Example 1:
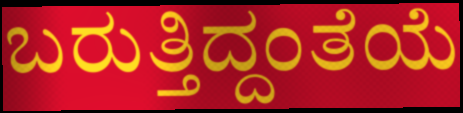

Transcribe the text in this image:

ಬರುತ್ತಿದ್ದಂತೆಯೆ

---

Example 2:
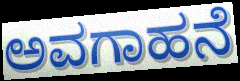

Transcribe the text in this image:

ಅವಗಾಹನೆ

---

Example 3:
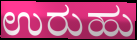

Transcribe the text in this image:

ಉರುಹು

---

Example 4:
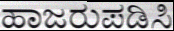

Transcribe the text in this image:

ಹಾಜರುಪಡಿಸಿ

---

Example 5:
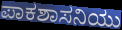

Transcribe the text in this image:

ಪಾಕಶಾಸನಿಯು